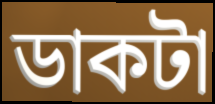
ডাকটা